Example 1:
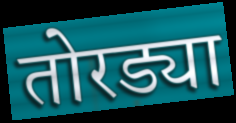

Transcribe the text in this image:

तोरड्या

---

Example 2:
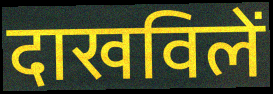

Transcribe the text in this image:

दाखविलें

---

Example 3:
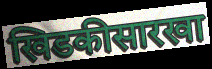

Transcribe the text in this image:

खिडकीसारखा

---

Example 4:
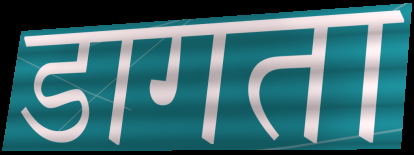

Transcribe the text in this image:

डागता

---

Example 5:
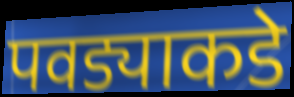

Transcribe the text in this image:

पवड्याकडे